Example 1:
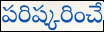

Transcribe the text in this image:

పరిష్కరించే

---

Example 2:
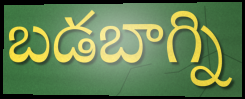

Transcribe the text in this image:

బడబాగ్ని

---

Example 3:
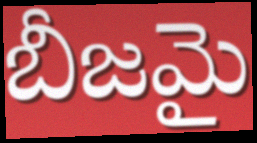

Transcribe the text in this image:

బీజమై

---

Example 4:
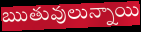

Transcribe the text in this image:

ఋతువులున్నాయి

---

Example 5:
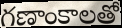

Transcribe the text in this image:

గణాంకాలతో